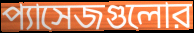
প্যাসেজগুলোর